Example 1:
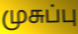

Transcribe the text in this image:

முசுப்பு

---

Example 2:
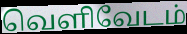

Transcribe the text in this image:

வெளிவேடம்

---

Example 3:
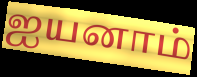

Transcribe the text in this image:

ஐயனாம்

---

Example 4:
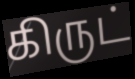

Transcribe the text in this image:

கிருட்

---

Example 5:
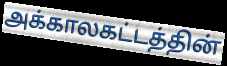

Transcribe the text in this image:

அக்காலகட்டத்தின்